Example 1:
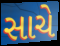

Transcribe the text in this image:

સાચે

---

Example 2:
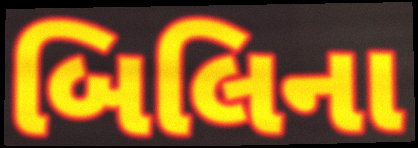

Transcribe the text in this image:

બિલિના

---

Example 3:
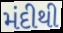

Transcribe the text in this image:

મંદીથી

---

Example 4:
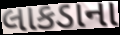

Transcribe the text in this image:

લાકડાના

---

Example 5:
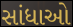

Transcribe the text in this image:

સાંધાઓ